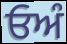
ਓਅੰ